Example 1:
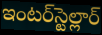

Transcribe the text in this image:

ఇంటర్‌స్టెల్లార్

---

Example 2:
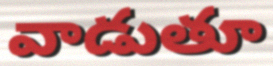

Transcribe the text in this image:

వాడుతూ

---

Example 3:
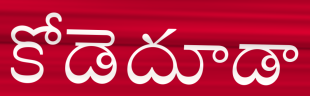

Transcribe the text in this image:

కోడెదూడా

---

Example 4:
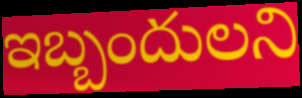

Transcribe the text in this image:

ఇబ్బందులని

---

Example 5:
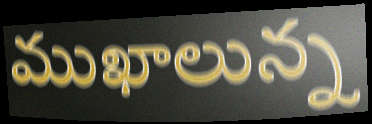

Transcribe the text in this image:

ముఖాలున్న